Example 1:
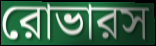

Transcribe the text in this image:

রোভারস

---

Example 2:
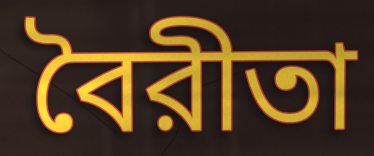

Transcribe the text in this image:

বৈরীতা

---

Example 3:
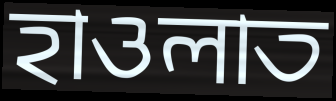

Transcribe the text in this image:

হাওলাত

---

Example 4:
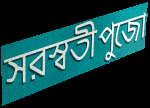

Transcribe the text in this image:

সরস্বতীপুজো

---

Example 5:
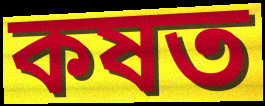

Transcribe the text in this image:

কষত